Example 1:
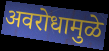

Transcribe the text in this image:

अवरोधामुळे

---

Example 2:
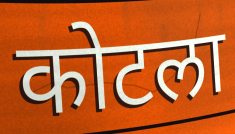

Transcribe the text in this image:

कोटला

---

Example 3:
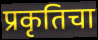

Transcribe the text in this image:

प्रकृतिचा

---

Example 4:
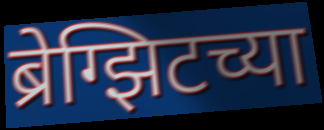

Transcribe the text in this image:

ब्रेग्झिटच्या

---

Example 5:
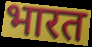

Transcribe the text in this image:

भारत